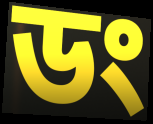
ডং